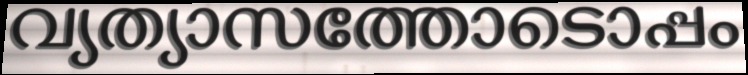
വ്യത്യാസത്തോടൊപ്പം